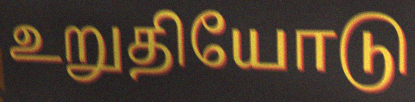
உறுதியோடு